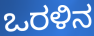
ಒರಳಿನ